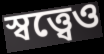
স্বত্ত্বেও